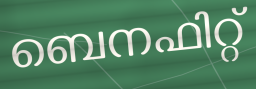
ബെനഫിറ്റ്